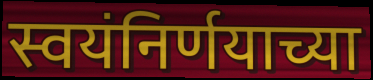
स्वयंनिर्णयाच्या